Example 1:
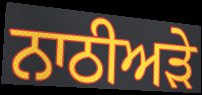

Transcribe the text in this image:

ਨਾਠੀਅੜੇ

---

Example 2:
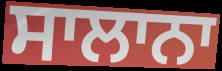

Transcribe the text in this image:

ਸਾਲਾਨਾ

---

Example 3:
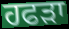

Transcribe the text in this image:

ਹਫੜਾ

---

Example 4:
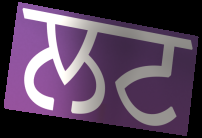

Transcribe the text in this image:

ਲਟ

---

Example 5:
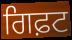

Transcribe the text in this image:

ਗਿਫ਼ਟ